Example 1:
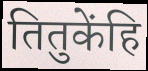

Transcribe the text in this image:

तितुकेंहि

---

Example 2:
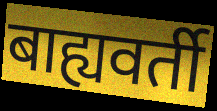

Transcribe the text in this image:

बाह्यवर्ती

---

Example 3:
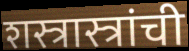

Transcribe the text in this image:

शस्त्रास्त्रांची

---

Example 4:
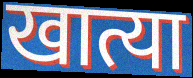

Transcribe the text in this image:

खात्या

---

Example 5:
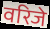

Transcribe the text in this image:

वरिजे